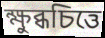
ক্ষুব্ধচিত্তে